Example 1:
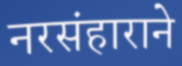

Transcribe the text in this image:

नरसंहाराने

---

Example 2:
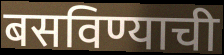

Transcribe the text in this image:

बसविण्याची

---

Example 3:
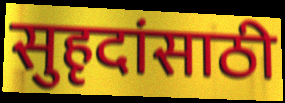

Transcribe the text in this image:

सुहृदांसाठी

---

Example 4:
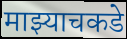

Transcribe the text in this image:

माझ्याचकडे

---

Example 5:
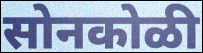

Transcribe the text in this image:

सोनकोळी